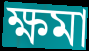
ক্ষমা